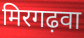
मिरगढ़वा